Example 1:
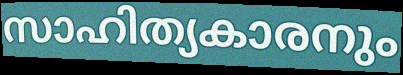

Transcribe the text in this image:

സാഹിത്യകാരനും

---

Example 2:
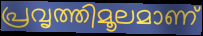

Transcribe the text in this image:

പ്രവൃത്തിമൂലമാണ്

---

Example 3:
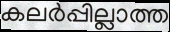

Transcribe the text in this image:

കലർപ്പില്ലാത്ത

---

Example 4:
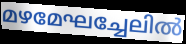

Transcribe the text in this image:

മഴമേഘച്ചേലിൽ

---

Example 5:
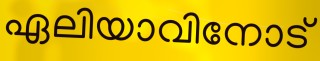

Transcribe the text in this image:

ഏലിയാവിനോട്